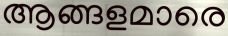
ആങ്ങളമാരെ